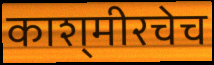
काश्मीरचेच